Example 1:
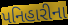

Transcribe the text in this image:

પનિહારીના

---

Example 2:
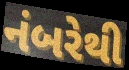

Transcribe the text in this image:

નંબરેથી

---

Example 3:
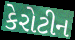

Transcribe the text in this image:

કેરોટીન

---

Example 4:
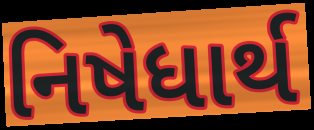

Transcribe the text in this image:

નિષેધાર્થ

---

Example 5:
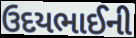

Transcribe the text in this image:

ઉદયભાઈની